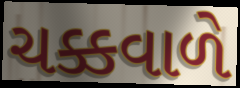
ચક્કવાળે